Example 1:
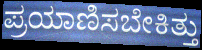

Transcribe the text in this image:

ಪ್ರಯಾಣಿಸಬೇಕಿತ್ತು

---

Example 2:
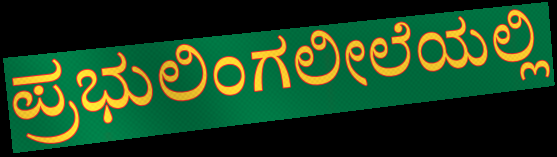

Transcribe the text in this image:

ಪ್ರಭುಲಿಂಗಲೀಲೆಯಲ್ಲಿ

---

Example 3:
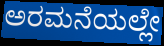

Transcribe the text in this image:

ಅರಮನೆಯಲ್ಲೇ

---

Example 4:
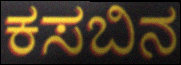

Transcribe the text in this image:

ಕಸಬಿನ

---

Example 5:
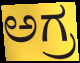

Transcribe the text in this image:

ಅಗ್ರ